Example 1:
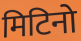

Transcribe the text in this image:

मिटिनो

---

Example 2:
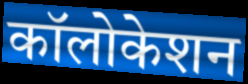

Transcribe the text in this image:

कॉलोकेशन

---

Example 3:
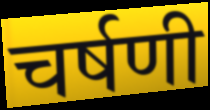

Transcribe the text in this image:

चर्षणी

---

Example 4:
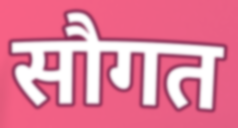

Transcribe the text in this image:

सौगत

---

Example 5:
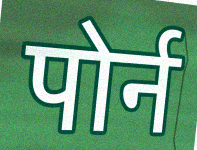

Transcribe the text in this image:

पोर्न